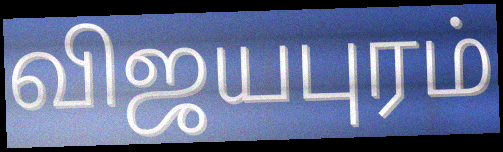
விஜயபுரம்